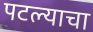
पटल्याचा